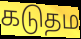
கடுதம